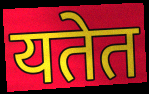
यतेत